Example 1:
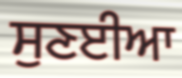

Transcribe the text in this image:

ਸੁਣਈਆ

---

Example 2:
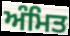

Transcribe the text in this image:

ਅੰਮਿਤ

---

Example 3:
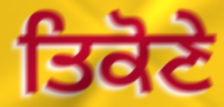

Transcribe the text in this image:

ਤਿਕੋਣੇ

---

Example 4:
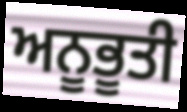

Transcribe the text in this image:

ਅਨੂਭੂਤੀ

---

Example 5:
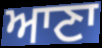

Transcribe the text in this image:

ਆਣਾ